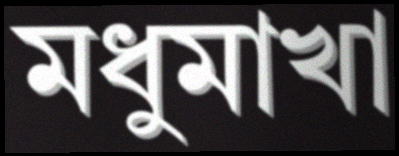
মধুমাখা